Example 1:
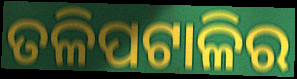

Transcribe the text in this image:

ତଳିପଟାଳିର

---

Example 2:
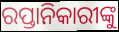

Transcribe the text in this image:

ରପ୍ତାନିକାରୀଙ୍କୁ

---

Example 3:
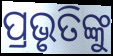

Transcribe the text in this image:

ପ୍ରଭୃତିଙ୍କୁ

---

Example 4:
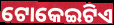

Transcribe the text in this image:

ଟୋକେଇଟିଏ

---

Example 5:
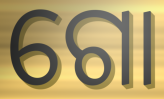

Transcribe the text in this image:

ଗୋ